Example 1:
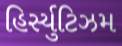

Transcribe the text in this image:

હિર્સ્યુટિઝમ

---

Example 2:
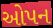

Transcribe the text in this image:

ઓપન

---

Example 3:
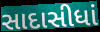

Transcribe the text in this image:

સાદાસીધાં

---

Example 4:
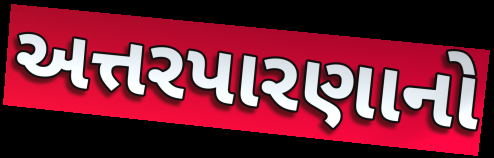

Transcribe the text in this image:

અત્તરપારણાનો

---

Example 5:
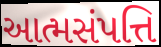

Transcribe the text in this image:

આત્મસંપત્તિ